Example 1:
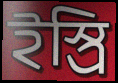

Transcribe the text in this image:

ইস্ত্রি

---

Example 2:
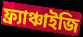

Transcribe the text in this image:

ফ্র্যাঞ্চাইজি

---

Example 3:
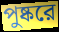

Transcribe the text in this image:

পুষ্করে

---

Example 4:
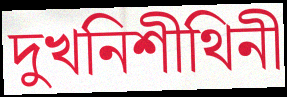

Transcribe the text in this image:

দুখনিশীথিনী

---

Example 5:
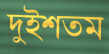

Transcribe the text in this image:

দুইশতম